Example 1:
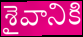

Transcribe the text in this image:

శైవానికి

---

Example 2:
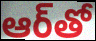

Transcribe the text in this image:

ఆర్‌తో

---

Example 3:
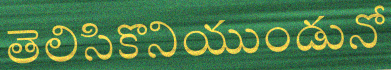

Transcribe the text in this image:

తెలిసికొనియుండునో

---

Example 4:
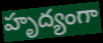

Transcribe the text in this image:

హృద్యంగా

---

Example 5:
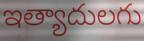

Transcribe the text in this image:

ఇత్యాదులగు